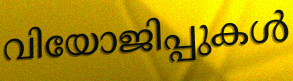
വിയോജിപ്പുകൾ